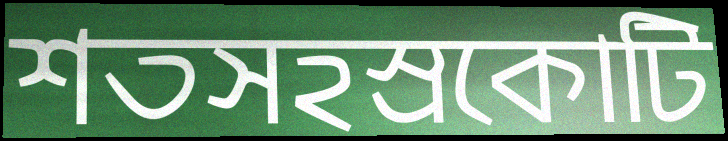
শতসহস্রকোটি